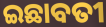
ଇଛାବତୀ